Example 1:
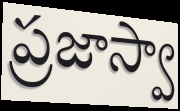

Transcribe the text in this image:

ప్రజాస్వా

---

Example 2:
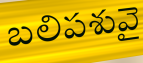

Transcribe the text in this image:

బలిపశువై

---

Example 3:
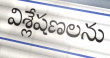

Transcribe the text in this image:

విశ్లేషణలను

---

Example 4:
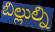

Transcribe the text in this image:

బిల్లుల్ని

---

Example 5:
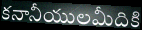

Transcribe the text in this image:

కనానీయులమీదికి